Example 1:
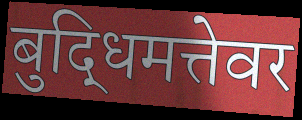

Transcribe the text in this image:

बुद्धिमत्तेवर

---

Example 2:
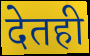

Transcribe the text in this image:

देतही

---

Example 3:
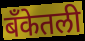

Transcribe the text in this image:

बँकेतली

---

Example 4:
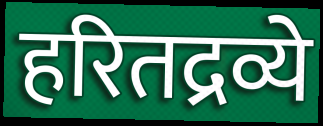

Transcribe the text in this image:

हरितद्रव्ये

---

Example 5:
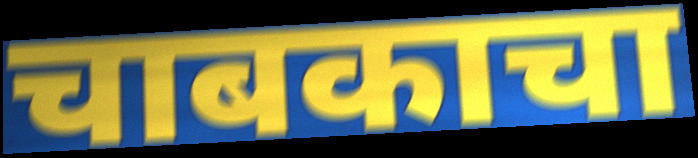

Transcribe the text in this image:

चाबकाचा